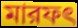
মারফৎ